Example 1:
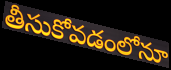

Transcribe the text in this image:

తీసుకోవడంలోనూ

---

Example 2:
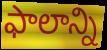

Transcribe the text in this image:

ఫాలాన్ని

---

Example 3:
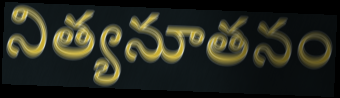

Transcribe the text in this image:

నిత్యనూతనం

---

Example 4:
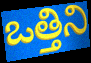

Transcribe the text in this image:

ఒత్తిని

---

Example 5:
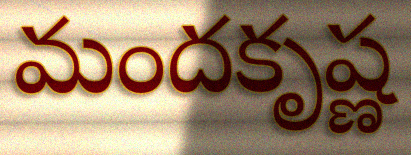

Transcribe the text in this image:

మందకృష్ణ